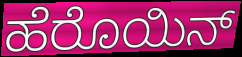
ಹೆರೊಯಿನ್